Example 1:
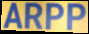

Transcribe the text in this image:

ARPP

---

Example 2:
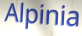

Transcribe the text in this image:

Alpinia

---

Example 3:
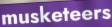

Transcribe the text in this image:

musketeers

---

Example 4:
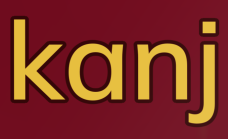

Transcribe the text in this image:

kanj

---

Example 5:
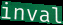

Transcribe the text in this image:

inval